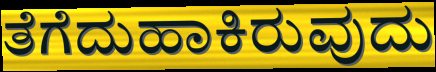
ತೆಗೆದುಹಾಕಿರುವುದು